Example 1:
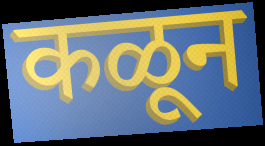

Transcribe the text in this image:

कळून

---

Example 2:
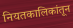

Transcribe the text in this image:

नियतकालिकांतून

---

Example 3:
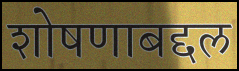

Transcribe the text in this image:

शोषणाबद्दल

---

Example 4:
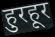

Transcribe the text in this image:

हुरहूर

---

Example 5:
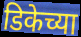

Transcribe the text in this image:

डिकेच्या